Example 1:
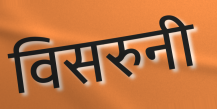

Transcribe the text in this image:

विसरुनी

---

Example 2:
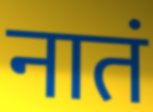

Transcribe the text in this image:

नातं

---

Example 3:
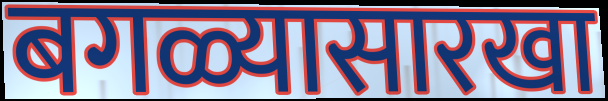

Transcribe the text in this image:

बगळ्यासारखा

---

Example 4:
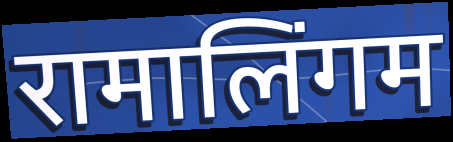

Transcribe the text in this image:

रामालिंगम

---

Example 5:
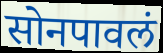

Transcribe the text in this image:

सोनपावलं